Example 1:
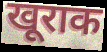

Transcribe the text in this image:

खूराक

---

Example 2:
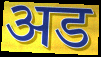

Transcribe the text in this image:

अड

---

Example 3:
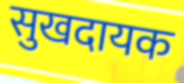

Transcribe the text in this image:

सुखदायक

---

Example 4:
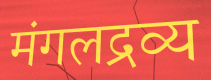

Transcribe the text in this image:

मंगलद्रव्य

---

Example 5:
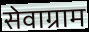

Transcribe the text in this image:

सेवाग्राम